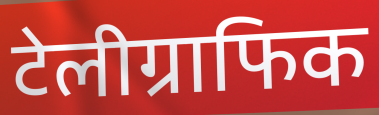
टेलीग्राफिक